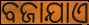
ବଜାଯାଏ